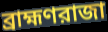
ব্রাহ্মণরাজা